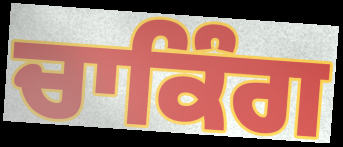
ਚਾਕਿੰਗ